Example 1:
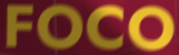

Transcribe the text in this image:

FOCO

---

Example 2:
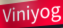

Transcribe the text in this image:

Viniyog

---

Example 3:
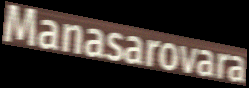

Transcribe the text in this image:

Manasarovara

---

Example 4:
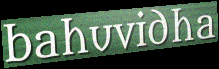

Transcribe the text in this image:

bahuvidha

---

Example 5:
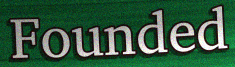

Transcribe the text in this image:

Founded